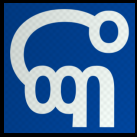
ଙ୍କ